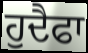
ਹੁਦੈਫਾ